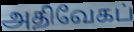
அதிவேகப்